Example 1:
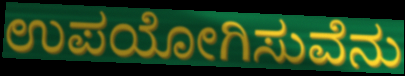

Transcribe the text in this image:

ಉಪಯೋಗಿಸುವೆನು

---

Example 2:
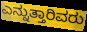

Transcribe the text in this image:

ಎನ್ನುತ್ತಾರಿವರು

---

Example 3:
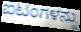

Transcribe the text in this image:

ಐಟಂಗಳನ್ನು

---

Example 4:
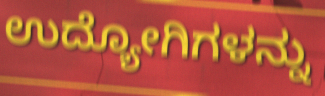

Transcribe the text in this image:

ಉದ್ಯೋಗಿಗಳನ್ನು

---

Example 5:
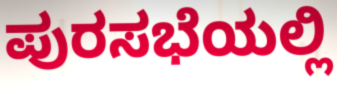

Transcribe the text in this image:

ಪುರಸಭೆಯಲ್ಲಿ